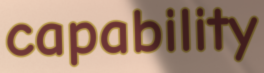
capability